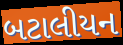
બટાલીયન